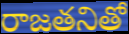
రాజతనితో